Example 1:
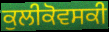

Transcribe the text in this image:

ਕੁਲੀਕੋਵਸਕੀ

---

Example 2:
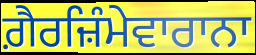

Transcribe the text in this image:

ਗ਼ੈਰਜ਼ਿੰਮੇਵਾਰਾਨਾ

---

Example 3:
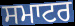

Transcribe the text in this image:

ਸਮਾਟਰ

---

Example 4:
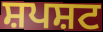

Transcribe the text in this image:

ਸ਼ਪਸ਼ਟ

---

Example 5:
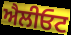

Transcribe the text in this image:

ਐਲੀਓਟ